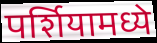
पर्शियामध्ये